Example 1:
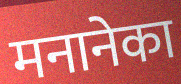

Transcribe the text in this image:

मनानेका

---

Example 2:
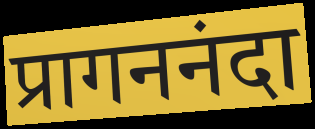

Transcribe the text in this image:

प्रागननंदा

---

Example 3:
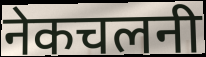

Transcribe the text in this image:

नेकचलनी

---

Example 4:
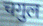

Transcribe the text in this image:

चगुल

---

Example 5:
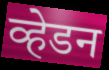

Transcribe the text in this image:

व्हेडन